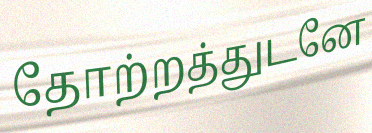
தோற்றத்துடனே